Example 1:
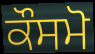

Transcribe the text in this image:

ਕੌਸਮੋ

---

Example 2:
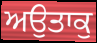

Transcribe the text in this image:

ਅਉਤਾਕੁ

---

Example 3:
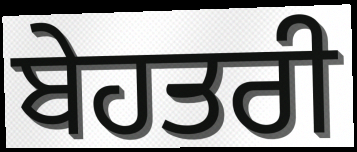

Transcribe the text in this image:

ਬੇਹਤਰੀ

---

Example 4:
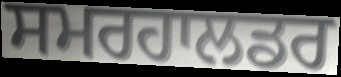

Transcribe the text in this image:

ਸਮਰਹਾਲਡਰ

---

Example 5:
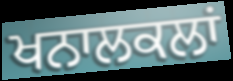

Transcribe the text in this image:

ਖਨਾਲਕਲਾਂ